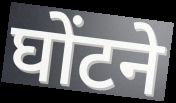
घोंटने